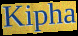
Kipha